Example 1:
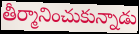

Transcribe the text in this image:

తీర్మానించుకున్నాడు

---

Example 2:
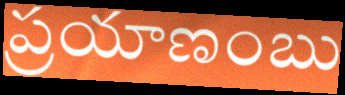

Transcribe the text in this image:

ప్రయాణంబు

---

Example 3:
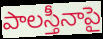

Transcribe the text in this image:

పాలస్తీనాపై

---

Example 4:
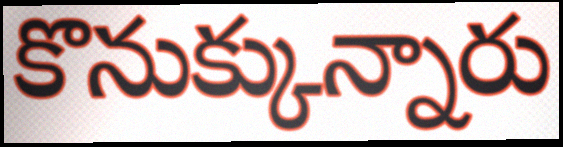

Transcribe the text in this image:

కొనుక్కున్నారు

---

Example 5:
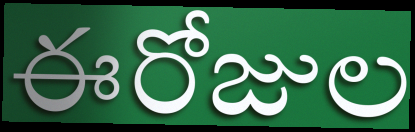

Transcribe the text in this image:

ఈరోజుల